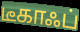
டீகாஃப்